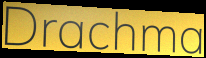
Drachma